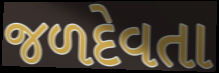
જળદેવતા